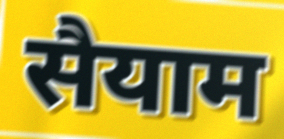
सैयाम